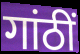
गांठीं